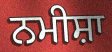
ਨਮੀਸ਼ਾ